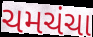
ચમચંચા